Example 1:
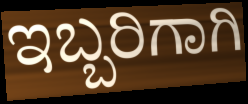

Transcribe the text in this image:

ಇಬ್ಬರಿಗಾಗಿ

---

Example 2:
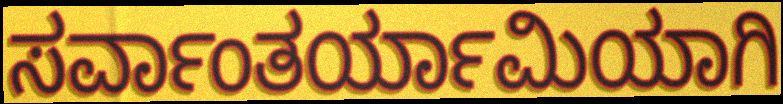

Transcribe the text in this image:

ಸರ್ವಾಂತರ್ಯಾಮಿಯಾಗಿ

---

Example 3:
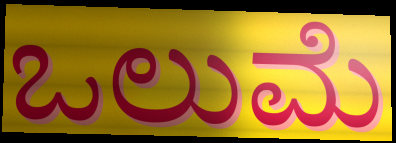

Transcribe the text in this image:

ಒಲುಮೆ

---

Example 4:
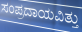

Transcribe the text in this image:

ಸಂಪ್ರದಾಯವಿತ್ತು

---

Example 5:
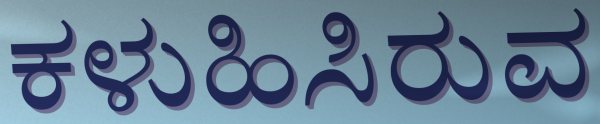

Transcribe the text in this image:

ಕಳುಹಿಸಿರುವ